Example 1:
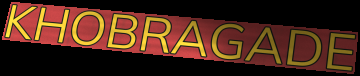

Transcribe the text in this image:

KHOBRAGADE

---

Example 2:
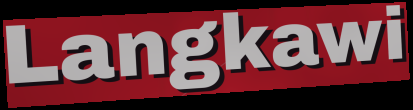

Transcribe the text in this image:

Langkawi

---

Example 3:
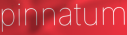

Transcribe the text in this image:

pinnatum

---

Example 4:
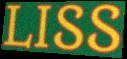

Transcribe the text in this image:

LISS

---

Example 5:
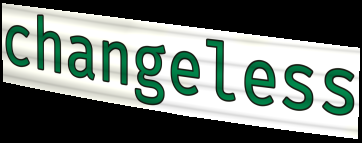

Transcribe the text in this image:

changeless